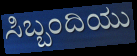
ಸಿಬ್ಬಂದಿಯು